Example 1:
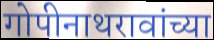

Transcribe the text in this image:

गोपीनाथरावांच्या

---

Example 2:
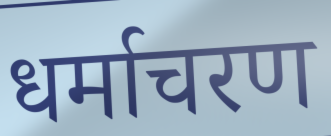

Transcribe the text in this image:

धर्माचरण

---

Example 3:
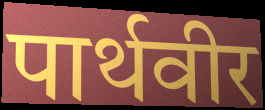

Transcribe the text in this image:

पार्थवीर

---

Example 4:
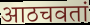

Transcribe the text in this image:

आठचवतां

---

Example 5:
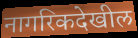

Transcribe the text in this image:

नागरिकदेखील